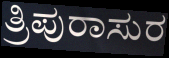
ತ್ರಿಪುರಾಸುರ